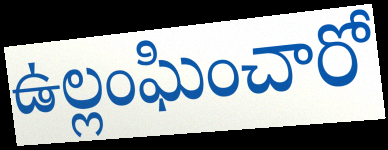
ఉల్లంఘించారో